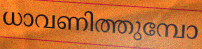
ധാവണിത്തുമ്പോ